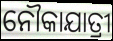
ନୌକାଯାତ୍ରୀ